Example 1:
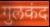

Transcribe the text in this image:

गुलकंद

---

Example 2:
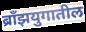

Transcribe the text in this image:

ब्राँझयुगातील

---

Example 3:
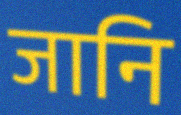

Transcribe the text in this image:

जानि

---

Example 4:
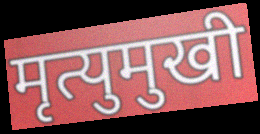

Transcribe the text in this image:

मृत्युमुखी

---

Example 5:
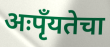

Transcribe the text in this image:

अःपृँयतेचा